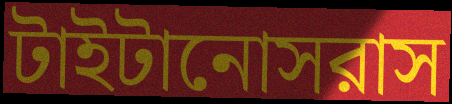
টাইটানোসরাস